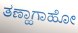
ತಣ್ಹಾಗಾಹೋ